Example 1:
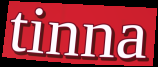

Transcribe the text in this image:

tinna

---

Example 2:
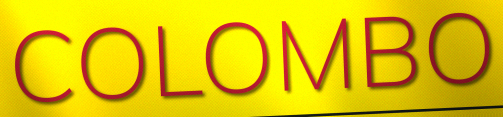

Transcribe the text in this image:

COLOMBO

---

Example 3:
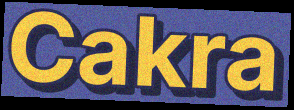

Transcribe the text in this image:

Cakra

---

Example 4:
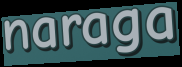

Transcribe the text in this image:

naraga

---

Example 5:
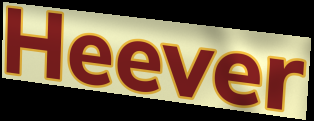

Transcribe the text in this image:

Heever